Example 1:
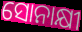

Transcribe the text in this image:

ସୋନାକ୍ଷୀ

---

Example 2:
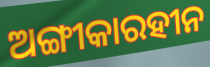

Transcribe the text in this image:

ଅଙ୍ଗୀକାରହୀନ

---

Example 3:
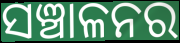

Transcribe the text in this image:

ସଞ୍ଚାଳନର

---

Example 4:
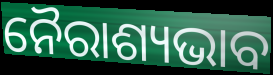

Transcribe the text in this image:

ନୈରାଶ୍ୟଭାବ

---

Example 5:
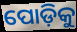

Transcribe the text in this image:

ପୋଡ଼ିକୁ